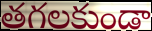
తగలకుండా